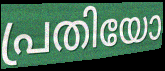
പ്രതിയോ